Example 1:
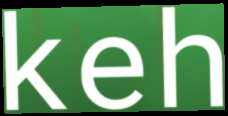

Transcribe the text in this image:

keh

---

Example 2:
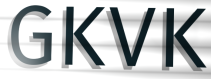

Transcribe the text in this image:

GKVK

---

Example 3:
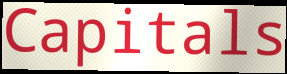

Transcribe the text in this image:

Capitals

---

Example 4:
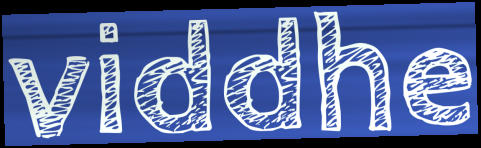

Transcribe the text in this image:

viddhe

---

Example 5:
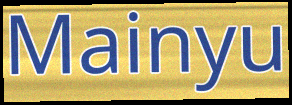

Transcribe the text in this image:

Mainyu